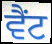
ਵੈਂਟ